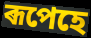
ৰূপেহে